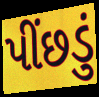
પીંછડું